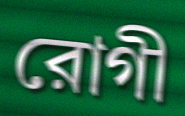
রোগী